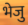
भेजु